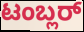
ಟಂಬ್ಲರ್